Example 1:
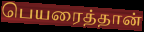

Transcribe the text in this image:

பெயரைத்தான்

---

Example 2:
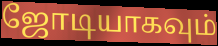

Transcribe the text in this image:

ஜோடியாகவும்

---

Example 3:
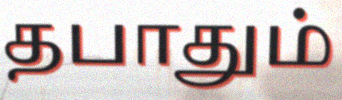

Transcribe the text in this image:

தபாதும்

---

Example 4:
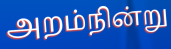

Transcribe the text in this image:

அறம்நின்று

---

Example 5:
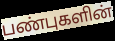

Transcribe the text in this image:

பண்புகளின்